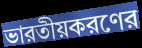
ভারতীয়করণের